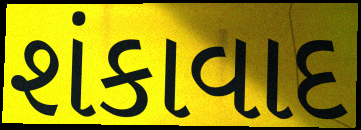
શંકાવાદ